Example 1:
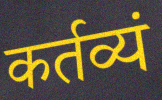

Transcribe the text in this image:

कर्तव्यं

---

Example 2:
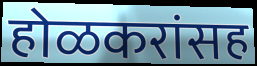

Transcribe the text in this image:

होळकरांसह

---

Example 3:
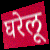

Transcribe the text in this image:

घरेलू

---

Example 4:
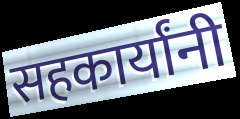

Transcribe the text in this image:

सहकार्यांनी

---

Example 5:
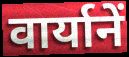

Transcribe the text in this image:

वार्यानें